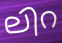
ലിറ